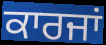
ਕਾਰਜਾਂ